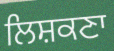
ਲਿਸ਼ਕਣਾ